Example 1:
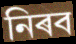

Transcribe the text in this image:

নিৰব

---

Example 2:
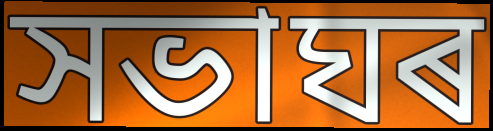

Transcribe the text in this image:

সভাঘৰ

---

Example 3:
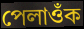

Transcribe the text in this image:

পেলাওঁক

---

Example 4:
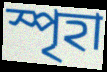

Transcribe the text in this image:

স্পৃহা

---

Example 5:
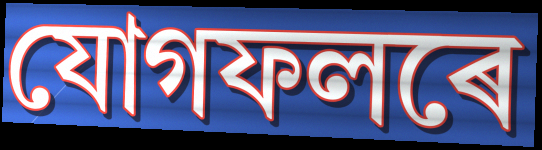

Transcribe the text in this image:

যোগফলৰে